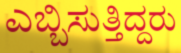
ಎಬ್ಬಿಸುತ್ತಿದ್ದರು